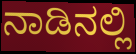
ನಾಡಿನಲ್ಲಿ